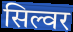
सिल्वर